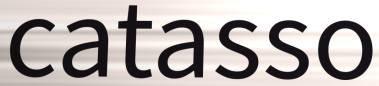
catasso